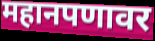
महानपणावर